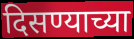
दिसण्याच्या